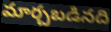
మార్చబడినది